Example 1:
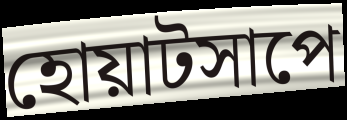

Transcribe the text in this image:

হোয়াটসাপে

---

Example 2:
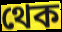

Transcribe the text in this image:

থেক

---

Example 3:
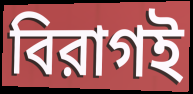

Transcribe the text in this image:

বিরাগই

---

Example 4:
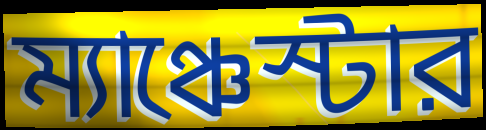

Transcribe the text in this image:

ম্যাঞ্চেস্টার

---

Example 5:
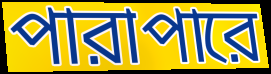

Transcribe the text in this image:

পারাপারে